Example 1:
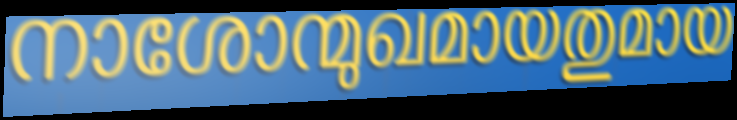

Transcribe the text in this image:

നാശോന്മുഖമായതുമായ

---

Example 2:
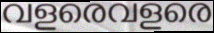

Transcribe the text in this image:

വളരെവളരെ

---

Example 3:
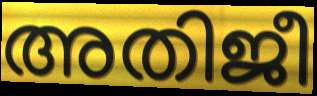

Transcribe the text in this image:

അതിജീ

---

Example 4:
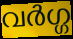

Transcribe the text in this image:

വർഗ്ഗ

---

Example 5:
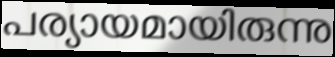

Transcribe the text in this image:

പര്യായമായിരുന്നു